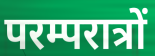
परम्परात्रों